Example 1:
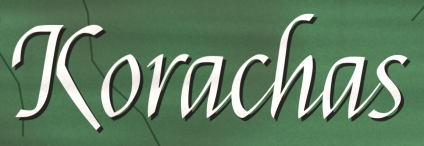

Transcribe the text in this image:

Korachas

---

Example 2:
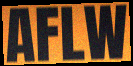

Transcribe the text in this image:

AFLW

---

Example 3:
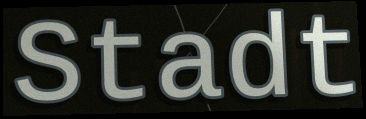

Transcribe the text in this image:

Stadt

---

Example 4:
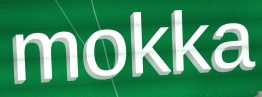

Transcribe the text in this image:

mokka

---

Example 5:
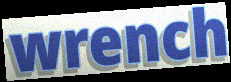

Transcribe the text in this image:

wrench